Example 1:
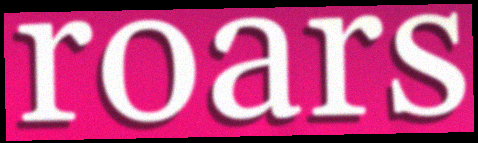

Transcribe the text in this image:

roars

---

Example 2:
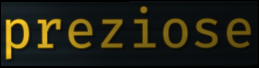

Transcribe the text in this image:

preziose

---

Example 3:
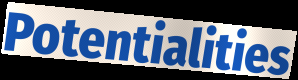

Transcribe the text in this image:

Potentialities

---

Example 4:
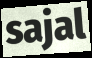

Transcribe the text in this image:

sajal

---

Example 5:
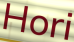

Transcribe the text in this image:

Hori